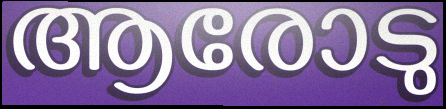
ആരോടു